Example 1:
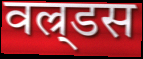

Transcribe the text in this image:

वल्र्डस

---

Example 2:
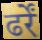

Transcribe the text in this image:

ढर्रें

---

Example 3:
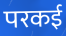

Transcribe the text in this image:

परकई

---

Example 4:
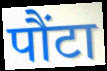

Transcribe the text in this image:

पौंटा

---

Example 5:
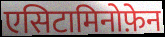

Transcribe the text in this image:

एसिटामिनोफ़ेन